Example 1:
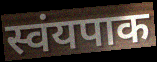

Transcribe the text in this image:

स्वंयपाक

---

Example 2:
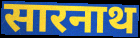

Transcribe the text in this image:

सारनाथ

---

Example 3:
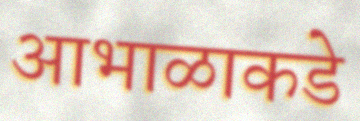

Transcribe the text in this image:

आभाळाकडे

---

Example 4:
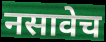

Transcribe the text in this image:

नसावेच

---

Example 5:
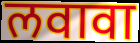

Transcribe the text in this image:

लवावा